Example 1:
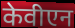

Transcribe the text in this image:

केवीएन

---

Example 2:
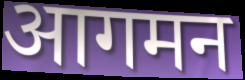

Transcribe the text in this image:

आगमन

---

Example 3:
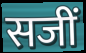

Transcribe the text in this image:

सजीं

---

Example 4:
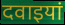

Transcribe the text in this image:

दवाइयां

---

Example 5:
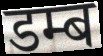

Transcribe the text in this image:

डम्ब